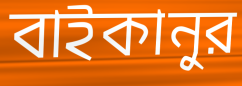
বাইকানুর